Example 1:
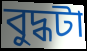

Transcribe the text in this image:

বুদ্ধটা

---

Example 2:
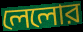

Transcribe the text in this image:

লেলোর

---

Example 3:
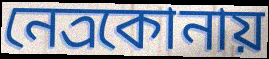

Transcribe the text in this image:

নেত্রকোনায়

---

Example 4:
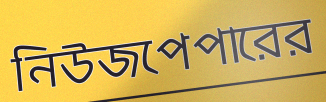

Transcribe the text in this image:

নিউজপেপারের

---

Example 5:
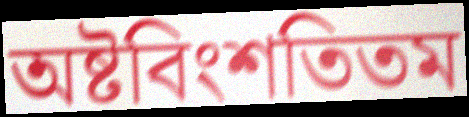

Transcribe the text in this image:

অষ্টবিংশতিতম